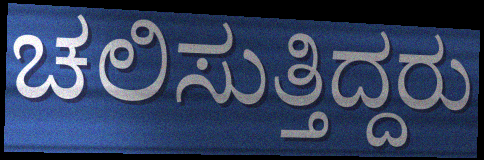
ಚಲಿಸುತ್ತಿದ್ದರು